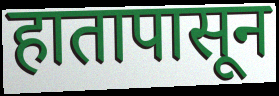
हातापासून